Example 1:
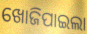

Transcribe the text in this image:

ଖୋଜିପାଇଲା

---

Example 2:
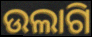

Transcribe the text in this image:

ଉଲାଗି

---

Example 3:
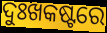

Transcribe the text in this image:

ଦୁଃଖକଷ୍ଟରେ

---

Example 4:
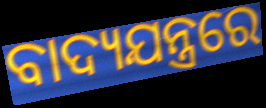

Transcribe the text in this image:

ବାଦ୍ୟଯନ୍ତ୍ରରେ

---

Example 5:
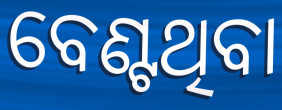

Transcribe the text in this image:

ବେଣ୍ଟଥିବା